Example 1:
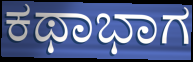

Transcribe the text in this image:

ಕಥಾಭಾಗ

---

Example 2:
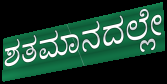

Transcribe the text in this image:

ಶತಮಾನದಲ್ಲೇ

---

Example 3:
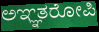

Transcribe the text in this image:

ಅಞ್ಞತರೋಪಿ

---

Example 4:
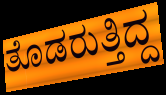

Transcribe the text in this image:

ತೊಡರುತ್ತಿದ್ದ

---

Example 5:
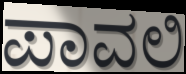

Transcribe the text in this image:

ಪಾವಲಿ